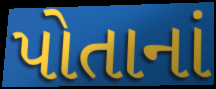
પોતાનાં